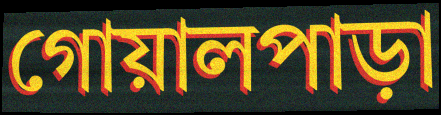
গোয়ালপাড়া